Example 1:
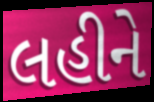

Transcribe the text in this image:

લહીને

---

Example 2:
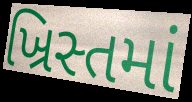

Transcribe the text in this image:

ખ્રિસ્તમાં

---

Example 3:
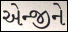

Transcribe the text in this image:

એન્જીને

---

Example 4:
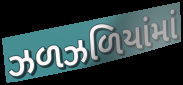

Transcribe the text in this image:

ઝળઝળિયાંમાં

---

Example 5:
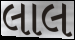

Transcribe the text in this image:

લાલ